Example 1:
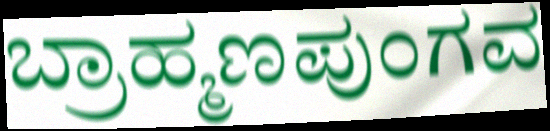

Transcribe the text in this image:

ಬ್ರಾಹ್ಮಣಪುಂಗವ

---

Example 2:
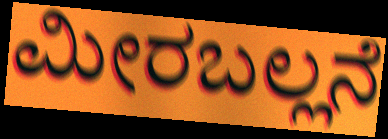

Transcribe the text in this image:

ಮೀರಬಲ್ಲನೆ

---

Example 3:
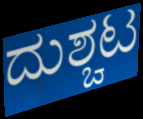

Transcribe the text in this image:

ದುಶ್ಚಟ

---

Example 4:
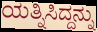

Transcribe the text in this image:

ಯತ್ನಿಸಿದ್ದನ್ನು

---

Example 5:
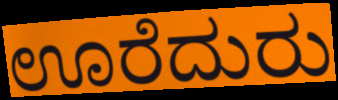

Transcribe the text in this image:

ಊರೆದುರು